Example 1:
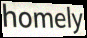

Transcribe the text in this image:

homely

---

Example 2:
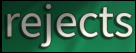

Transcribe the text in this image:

rejects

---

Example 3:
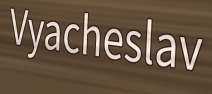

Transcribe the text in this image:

Vyacheslav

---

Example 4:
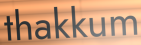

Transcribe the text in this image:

thakkum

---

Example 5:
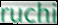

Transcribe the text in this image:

ruchi